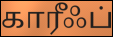
காரீஃப்